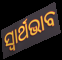
ସ୍ଵାର୍ଥଭାବ